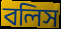
বলিস